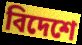
বিদেশে